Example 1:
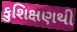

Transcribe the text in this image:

કુશિક્ષણથી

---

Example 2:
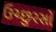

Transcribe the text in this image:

ઉચ્છુરસો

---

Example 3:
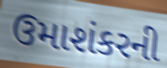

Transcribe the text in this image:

ઉમાશંકરની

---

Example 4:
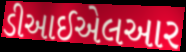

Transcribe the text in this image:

ડીઆઈએલઆર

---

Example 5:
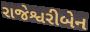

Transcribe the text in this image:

રાજેશ્વરીબેન